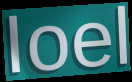
Ioel